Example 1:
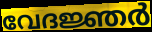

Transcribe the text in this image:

വേദജ്ഞർ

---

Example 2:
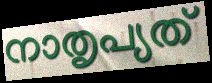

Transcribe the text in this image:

നാതൃപ്യത്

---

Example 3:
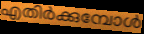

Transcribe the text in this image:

എതിർക്കുമ്പോൾ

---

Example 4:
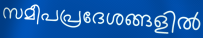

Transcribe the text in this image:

സമീപപ്രദേശങ്ങളിൽ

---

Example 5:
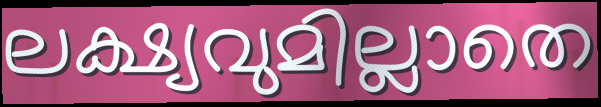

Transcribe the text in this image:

ലക്ഷ്യവുമില്ലാതെ